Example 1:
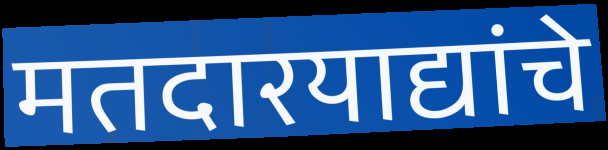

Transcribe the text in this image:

मतदारयाद्यांचे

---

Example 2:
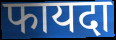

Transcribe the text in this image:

फायदा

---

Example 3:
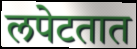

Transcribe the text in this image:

लपेटतात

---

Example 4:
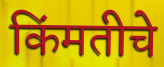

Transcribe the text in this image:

किंमतीचे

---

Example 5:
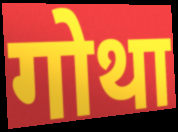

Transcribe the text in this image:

गोथा